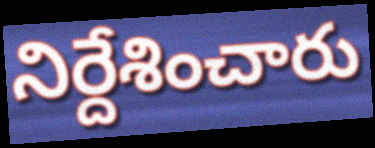
నిర్దేశించారు